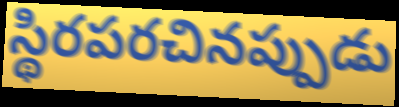
స్థిరపరచినప్పుడు